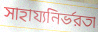
সাহায্যনির্ভরতা